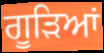
ਗੂੜਿਆਂ